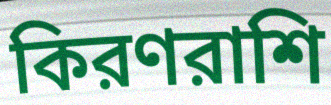
কিরণরাশি